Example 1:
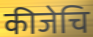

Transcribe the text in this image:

कीजेचि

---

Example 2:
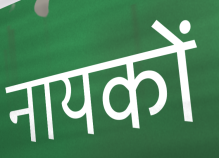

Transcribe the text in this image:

नायकों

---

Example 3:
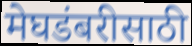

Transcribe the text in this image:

मेघडंबरीसाठी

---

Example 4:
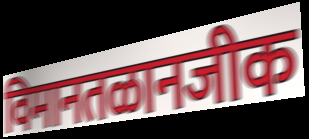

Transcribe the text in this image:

विमानतळानजीक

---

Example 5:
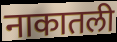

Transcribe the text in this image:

नाकातली